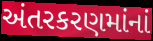
અંતરકરણમાંનાં